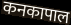
कनकापाल